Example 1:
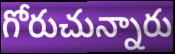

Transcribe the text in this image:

గోరుచున్నారు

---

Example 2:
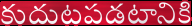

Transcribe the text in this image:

కుదుటపడటానికి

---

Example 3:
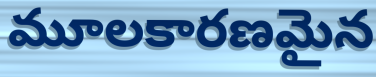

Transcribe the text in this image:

మూలకారణమైన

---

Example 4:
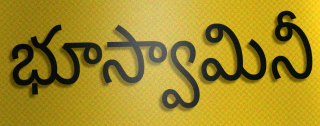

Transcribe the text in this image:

భూస్వామినీ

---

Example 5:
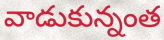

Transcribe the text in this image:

వాడుకున్నంత